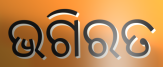
ଭଗିରତ